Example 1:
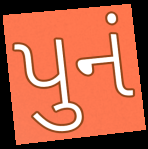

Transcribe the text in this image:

પુનં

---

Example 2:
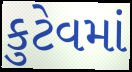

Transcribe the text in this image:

કુટેવમાં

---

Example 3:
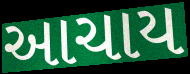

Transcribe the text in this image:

આચાય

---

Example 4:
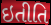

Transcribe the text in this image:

ઇતીતિ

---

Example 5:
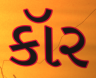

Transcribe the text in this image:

કૉર